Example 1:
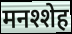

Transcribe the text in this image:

मनश्शेह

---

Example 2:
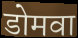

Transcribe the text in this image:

डोमवा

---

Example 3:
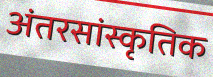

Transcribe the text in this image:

अंतरसांस्कृतिक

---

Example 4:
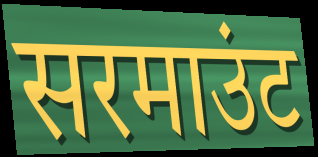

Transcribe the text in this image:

सरमाउंट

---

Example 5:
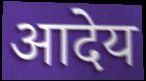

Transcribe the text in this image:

आदेय